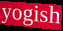
yogish